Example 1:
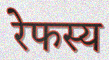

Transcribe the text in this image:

रेफस्य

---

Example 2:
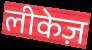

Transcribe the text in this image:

लीकेज़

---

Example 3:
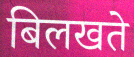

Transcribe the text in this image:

बिलखते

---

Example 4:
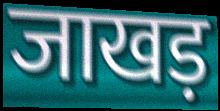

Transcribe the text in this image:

जाखड़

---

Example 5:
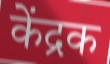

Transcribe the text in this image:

केंद्रक